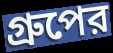
গ্রুপের